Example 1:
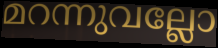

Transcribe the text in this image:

മറന്നുവല്ലോ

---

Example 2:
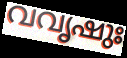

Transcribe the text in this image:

വവൃഷുഃ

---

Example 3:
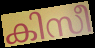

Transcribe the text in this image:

കിസീ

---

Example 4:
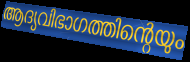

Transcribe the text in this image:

ആദ്യവിഭാഗത്തിന്റെയും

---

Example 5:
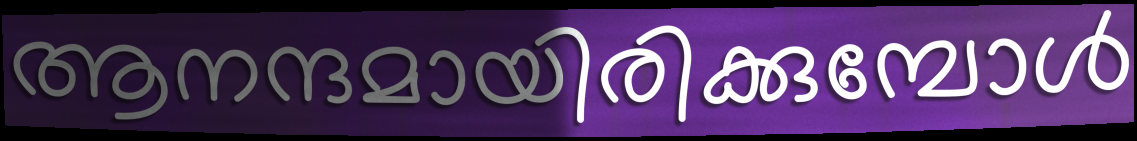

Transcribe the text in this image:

ആനന്ദമായിരിക്കുമ്പോൾ